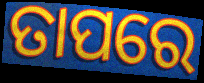
ତାପରେ